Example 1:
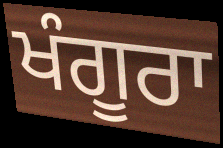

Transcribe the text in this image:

ਖੰਗੂਰਾ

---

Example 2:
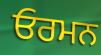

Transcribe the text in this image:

ਓਰਮਨ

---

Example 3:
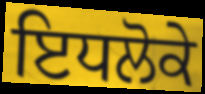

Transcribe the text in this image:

ਇਧਲੋਕੇ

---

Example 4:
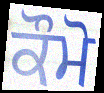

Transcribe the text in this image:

ਕੌਮੋ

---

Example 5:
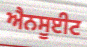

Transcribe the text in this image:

ਐਨਸੂਈਟ